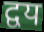
द्वय